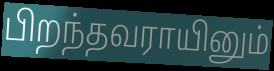
பிறந்தவராயினும்